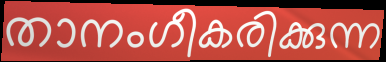
താനംഗീകരിക്കുന്ന